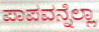
ಪಾಪವನ್ನೆಲ್ಲಾ